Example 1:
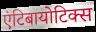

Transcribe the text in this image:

एंटिबायोटिक्स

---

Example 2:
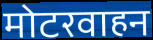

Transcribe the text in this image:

मोटरवाहन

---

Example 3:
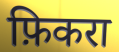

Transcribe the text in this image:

फ़िकरा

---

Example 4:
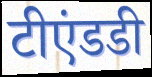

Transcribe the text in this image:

टीएंडडी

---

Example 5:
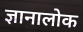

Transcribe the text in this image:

ज्ञानालोक